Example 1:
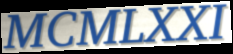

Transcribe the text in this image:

MCMLXXI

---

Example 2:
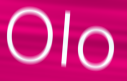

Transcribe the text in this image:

Olo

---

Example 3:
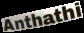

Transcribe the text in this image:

Anthathi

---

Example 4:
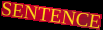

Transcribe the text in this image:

SENTENCE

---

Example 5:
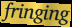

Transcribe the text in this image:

fringing